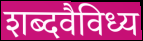
शब्दवैविध्य